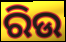
ରିଉ